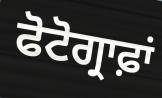
ਫੋਟੋਗ੍ਰਾਫ਼ਾਂ